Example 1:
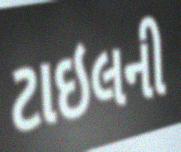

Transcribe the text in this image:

ટાઇલની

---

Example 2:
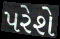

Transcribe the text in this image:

પરેશે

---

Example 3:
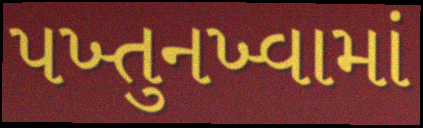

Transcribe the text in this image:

પખ્તુનખ્વામાં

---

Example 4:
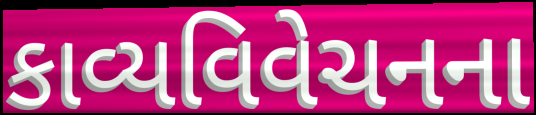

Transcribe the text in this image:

કાવ્યવિવેચનના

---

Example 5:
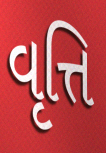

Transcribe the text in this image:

વૃત્તિ